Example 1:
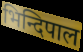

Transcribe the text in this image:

भिन्दिपाल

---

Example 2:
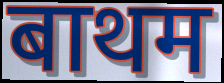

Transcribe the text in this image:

बाथम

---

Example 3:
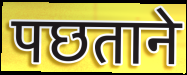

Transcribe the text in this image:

पछताने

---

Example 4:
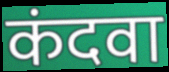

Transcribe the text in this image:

कंदवा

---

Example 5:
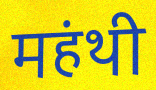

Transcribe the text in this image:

महंथी